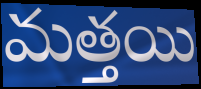
మత్తయి